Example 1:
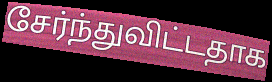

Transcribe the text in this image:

சேர்ந்துவிட்டதாக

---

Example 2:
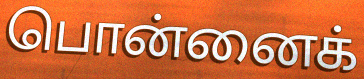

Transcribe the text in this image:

பொன்னைக்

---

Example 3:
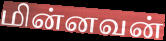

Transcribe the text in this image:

மின்னவன்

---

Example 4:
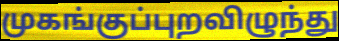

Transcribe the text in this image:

முகங்குப்புறவிழுந்து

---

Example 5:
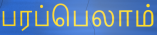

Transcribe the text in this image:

பரப்பெலாம்